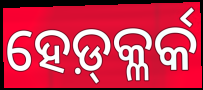
ହେଡ଼୍‍କ୍ଳର୍କ